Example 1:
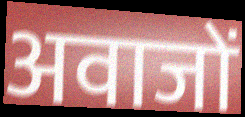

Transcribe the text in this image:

अवाजों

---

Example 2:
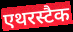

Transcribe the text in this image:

एथरस्टैक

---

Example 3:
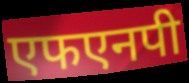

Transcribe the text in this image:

एफएनपी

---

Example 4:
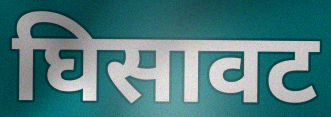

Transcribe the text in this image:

घिसावट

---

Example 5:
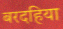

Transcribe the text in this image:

बरदहिया